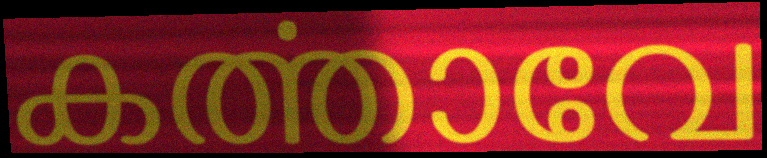
കൎത്താവേ